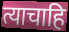
त्याचाहि